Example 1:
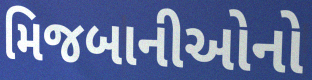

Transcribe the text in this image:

મિજબાનીઓનો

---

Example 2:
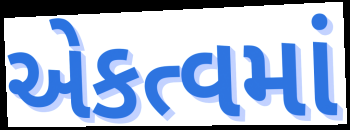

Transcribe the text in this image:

એકત્વમાં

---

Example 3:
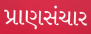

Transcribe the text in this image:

પ્રાણસંચાર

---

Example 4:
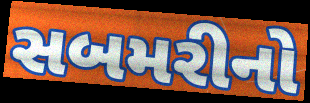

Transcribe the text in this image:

સબમરીનો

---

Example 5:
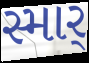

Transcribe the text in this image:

સ્માર્